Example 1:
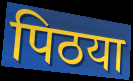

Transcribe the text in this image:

पिठया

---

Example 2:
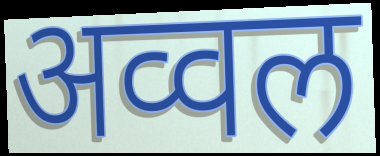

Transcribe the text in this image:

अव्वल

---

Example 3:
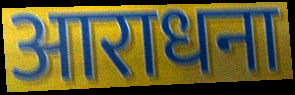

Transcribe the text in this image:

आराधना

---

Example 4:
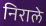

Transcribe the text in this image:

निराले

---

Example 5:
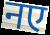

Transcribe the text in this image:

नए